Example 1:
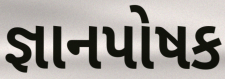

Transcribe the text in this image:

જ્ઞાનપોષક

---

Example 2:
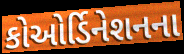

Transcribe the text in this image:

કોઓર્ડિનેશનના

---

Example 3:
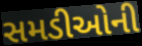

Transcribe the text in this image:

સમડીઓની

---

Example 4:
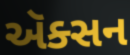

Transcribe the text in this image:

ઍક્સન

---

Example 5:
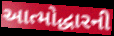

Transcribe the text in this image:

આત્મોદ્ધારની